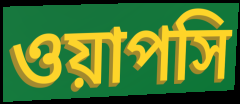
ওয়াপসি